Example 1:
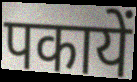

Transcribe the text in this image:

पकायें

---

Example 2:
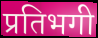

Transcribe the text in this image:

प्रतिभगी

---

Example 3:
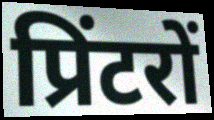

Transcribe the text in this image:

प्रिंटरों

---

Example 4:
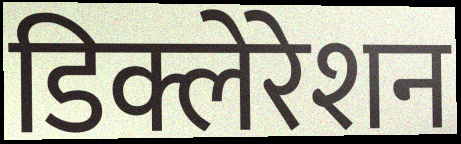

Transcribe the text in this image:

डिक्लेरेशन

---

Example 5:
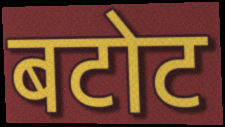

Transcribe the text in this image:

बटोट